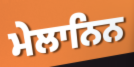
ਮੇਲਾਨਿਨ